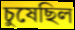
চুষেছিল